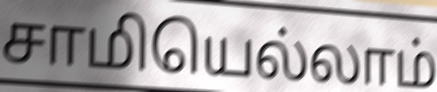
சாமியெல்லாம்